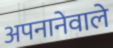
अपनानेवाले